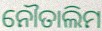
ନୌତାଲିମ